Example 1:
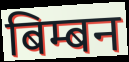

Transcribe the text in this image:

बिम्बन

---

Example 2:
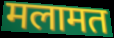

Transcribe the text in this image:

मलामत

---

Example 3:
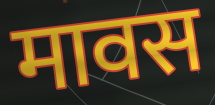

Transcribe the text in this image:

मावस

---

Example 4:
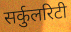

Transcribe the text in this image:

सर्कुलरिटी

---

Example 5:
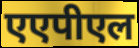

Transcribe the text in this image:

एएपीएल